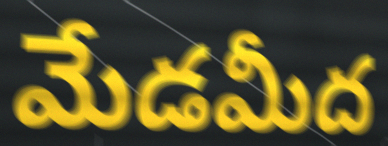
మేడమీద